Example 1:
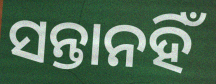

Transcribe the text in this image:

ସନ୍ତାନହିଁ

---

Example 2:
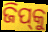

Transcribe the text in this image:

ଜିପ୍‍କୁ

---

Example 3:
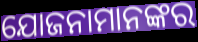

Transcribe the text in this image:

ଯୋଜନାମାନଙ୍କର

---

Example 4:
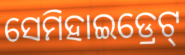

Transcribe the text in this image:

ସେମିହାଇଡ୍ରେଟ୍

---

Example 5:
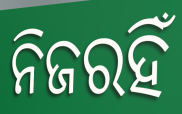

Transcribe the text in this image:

ନିଜରହିଁ